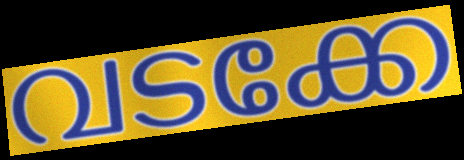
വടക്കേ